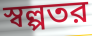
স্বল্পতর